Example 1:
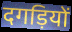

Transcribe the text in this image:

दगड़ियों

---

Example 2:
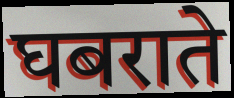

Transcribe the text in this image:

घबराते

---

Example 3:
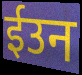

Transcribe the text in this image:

ईउन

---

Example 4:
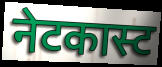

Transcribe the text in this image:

नेटकास्ट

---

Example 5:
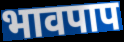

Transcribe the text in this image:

भावपाप